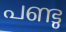
പണ്ടു